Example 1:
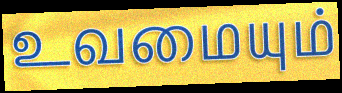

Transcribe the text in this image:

உவமையும்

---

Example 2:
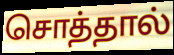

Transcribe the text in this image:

சொத்தால்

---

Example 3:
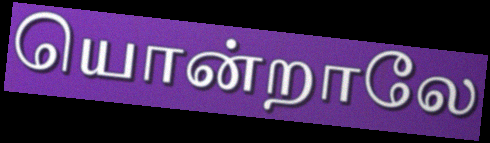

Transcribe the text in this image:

யொன்றாலே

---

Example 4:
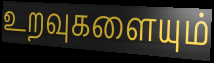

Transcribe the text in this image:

உறவுகளையும்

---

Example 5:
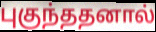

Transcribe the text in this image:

புகுந்ததனால்